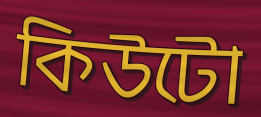
কিউটো